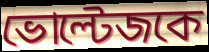
ভোল্টেজকে